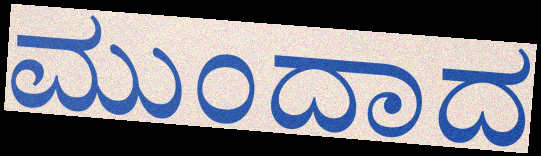
ಮುಂದಾದ